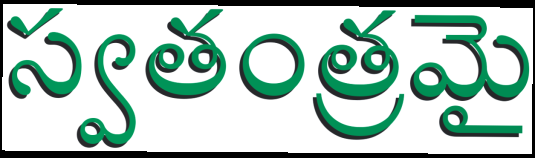
స్వతంత్రమై